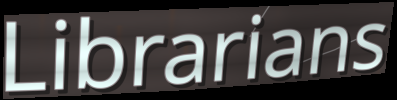
Librarians